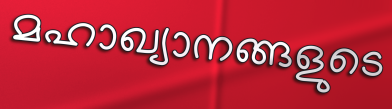
മഹാഖ്യാനങ്ങളുടെ